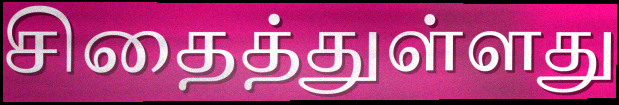
சிதைத்துள்ளது